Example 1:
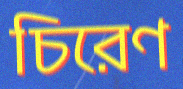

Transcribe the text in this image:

চিরেণ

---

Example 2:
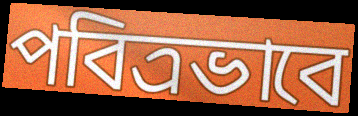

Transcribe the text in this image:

পবিত্রভাবে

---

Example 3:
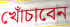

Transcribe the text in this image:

খোঁচাবেন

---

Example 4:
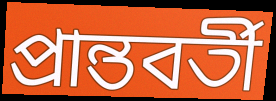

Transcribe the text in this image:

প্রান্তবর্তী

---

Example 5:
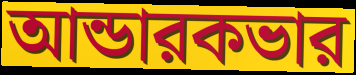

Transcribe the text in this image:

আন্ডারকভার